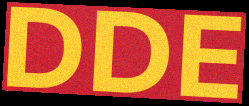
DDE